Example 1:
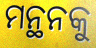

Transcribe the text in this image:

ମନ୍ଥନକୁ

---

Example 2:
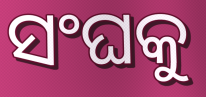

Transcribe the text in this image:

ସଂଘକୁ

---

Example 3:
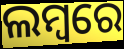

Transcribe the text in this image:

ଲମ୍ବରେ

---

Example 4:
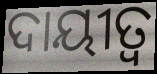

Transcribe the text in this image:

ଦାୟୀତ୍ୱ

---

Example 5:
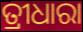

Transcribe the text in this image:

ତ୍ରୀଧାରା